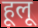
हूलू